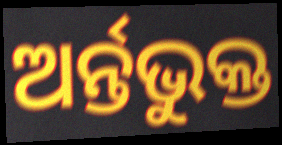
ଅର୍ନ୍ତଭୁକ୍ତ